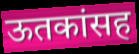
ऊतकांसह